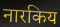
नारकिय